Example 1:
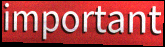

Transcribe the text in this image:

important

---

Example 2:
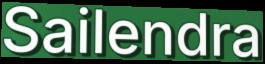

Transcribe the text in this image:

Sailendra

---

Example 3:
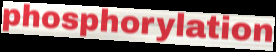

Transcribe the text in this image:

phosphorylation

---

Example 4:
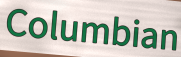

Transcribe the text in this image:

Columbian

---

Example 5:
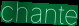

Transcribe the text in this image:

chante